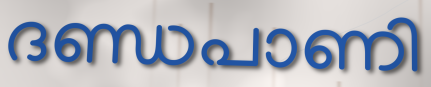
ദണ്ഡപാണി